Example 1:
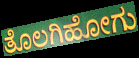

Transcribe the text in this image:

ತೊಲಗಿಹೋಗು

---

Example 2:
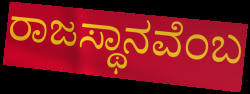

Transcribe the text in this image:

ರಾಜಸ್ಥಾನವೆಂಬ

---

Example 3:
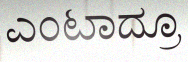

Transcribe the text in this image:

ಎಂಟಾದ್ರೂ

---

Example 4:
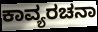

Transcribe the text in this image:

ಕಾವ್ಯರಚನಾ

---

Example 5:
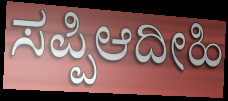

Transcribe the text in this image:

ಸಪ್ಪಿಆದೀಹಿ